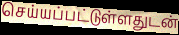
செய்யப்பட்டுள்ளதுடன்